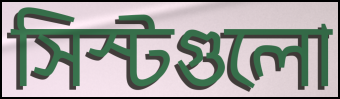
সিস্টগুলো